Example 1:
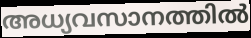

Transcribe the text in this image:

അധ്യവസാനത്തിൽ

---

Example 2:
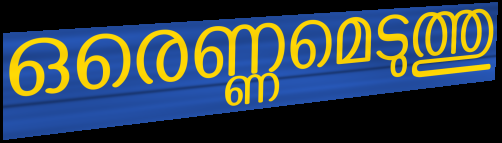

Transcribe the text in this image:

ഒരെണ്ണമെടുത്തു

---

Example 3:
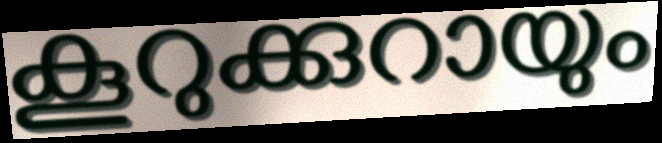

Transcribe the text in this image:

കൂറുക്കുറായും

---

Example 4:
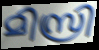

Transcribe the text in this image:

മിസ്രി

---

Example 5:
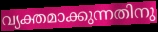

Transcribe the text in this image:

വ്യക്തമാക്കുന്നതിനു